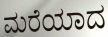
ಮರೆಯಾದ